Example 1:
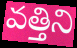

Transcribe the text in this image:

వత్తిని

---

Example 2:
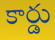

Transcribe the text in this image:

కార్డు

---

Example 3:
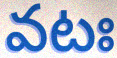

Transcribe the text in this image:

వటః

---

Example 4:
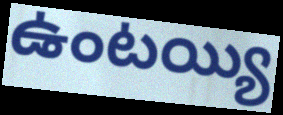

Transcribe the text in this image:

ఉంటయ్యి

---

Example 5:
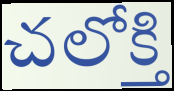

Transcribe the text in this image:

చలోక్తి